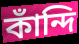
কাঁন্দি